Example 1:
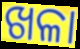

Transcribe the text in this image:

ଖଳା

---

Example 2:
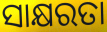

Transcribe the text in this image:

ସାକ୍ଷରତା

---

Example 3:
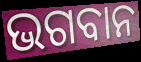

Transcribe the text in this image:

ଭଗବାନ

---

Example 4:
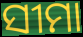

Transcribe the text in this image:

ସୀମା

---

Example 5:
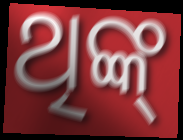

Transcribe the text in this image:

ଥିଙ୍କ୍